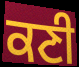
ਕਣੀ